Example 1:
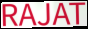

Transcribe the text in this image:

RAJAT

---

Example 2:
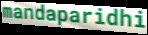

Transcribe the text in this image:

mandaparidhi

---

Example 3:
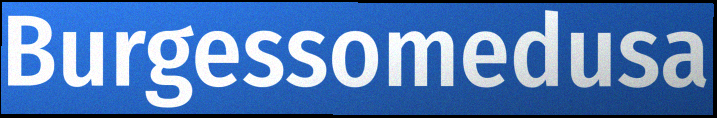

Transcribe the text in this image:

Burgessomedusa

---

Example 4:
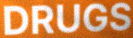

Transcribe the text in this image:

DRUGS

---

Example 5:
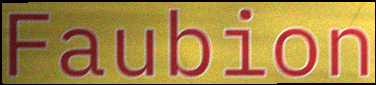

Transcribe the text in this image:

Faubion